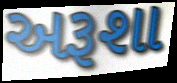
અરૂશા